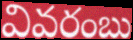
వివరంబు